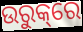
ଉରୁକ୍‌ରେ